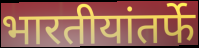
भारतीयांतर्फे